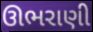
ઊભરાણી